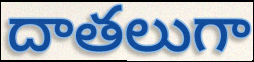
దాతలుగా